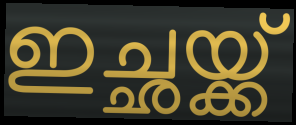
ഇച്ഛയ്ക്ക്